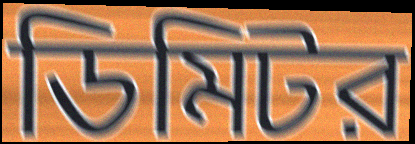
ডিমিটর